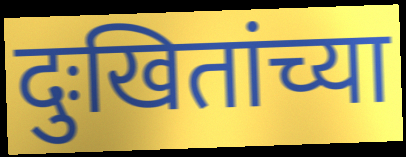
दुःखितांच्या